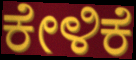
ಕೇಳಿಕೆ